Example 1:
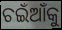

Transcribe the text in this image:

ଚଇଁଆଁକୁ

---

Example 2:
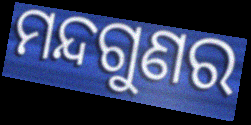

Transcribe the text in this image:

ମନ୍ଦଗୁଣର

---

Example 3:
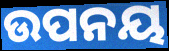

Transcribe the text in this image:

ଉପନୟ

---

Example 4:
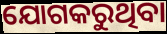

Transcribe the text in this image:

ଯୋଗକରୁଥିବା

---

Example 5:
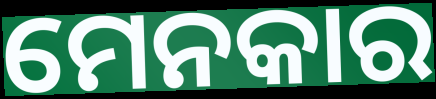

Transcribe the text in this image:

ମେନକାର